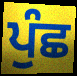
ਪੁੰਛ